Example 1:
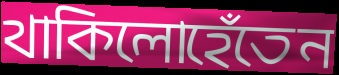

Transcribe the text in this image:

থাকিলোহেঁতেন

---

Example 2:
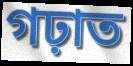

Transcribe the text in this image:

গঢ়াত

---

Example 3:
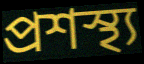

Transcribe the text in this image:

প্ৰশস্থ্য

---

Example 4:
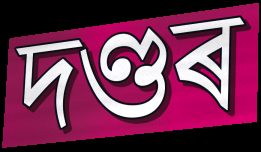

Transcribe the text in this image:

দণ্ডৰ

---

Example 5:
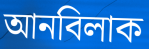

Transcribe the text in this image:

আনবিলাক